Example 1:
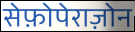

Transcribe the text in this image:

सेफ़ोपेराज़ोन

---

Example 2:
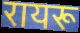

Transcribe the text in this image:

रायरू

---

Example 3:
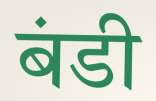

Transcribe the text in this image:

बंडी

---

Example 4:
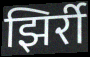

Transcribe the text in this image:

झिर्री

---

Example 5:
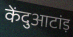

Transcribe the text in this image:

केंदुआटांड़